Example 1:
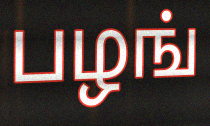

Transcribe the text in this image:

பழங்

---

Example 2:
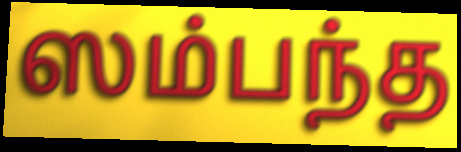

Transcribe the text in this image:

ஸம்பந்த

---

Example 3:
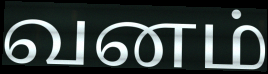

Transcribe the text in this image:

வனம்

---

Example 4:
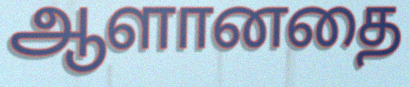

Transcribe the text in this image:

ஆளானதை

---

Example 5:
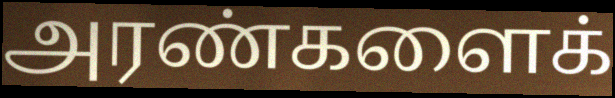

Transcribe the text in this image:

அரண்களைக்